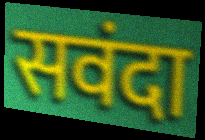
सवंदा